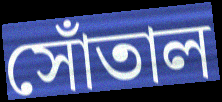
সোঁতাল